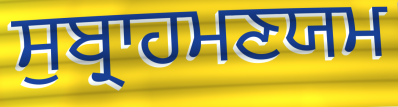
ਸੁਬ੍ਰਾਹਮਣਯਮ